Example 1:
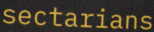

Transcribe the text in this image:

sectarians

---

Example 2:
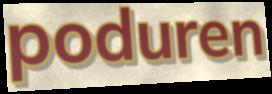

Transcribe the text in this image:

poduren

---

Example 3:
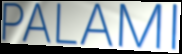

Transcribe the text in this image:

PALAMI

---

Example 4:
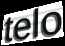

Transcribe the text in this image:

telo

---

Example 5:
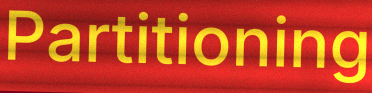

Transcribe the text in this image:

Partitioning